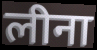
लीना